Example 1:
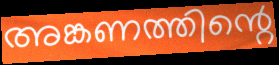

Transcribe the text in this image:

അങ്കണത്തിന്റെ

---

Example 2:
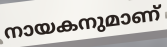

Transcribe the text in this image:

നായകനുമാണ്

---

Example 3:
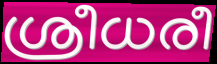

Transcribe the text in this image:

ശ്രീധരീ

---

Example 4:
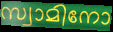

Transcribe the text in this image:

സ്വാമിനോ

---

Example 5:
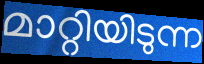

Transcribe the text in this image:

മാറ്റിയിടുന്ന